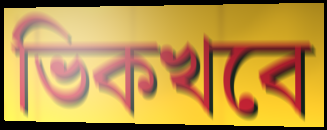
ভিকখবে